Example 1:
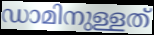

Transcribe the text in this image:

ഡാമിനുള്ളത്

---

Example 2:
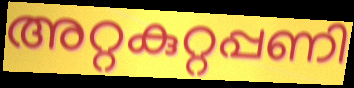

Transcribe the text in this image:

അറ്റകുറ്റപ്പണി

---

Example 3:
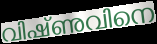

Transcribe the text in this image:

വിഷ്‌ണുവിനെ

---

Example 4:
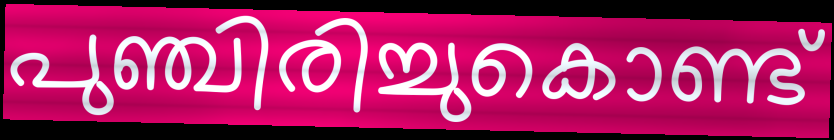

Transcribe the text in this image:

പുഞ്ചിരിച്ചുകൊണ്ട്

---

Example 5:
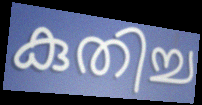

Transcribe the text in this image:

കുതിച്ച